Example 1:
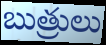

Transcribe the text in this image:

బుత్రులు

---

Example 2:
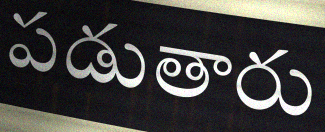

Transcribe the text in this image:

పడుతారు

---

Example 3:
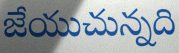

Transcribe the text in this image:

జేయుచున్నది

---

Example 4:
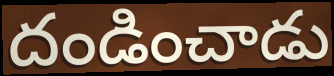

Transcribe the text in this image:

దండించాడు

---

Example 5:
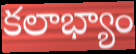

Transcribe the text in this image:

కలాభ్యాం